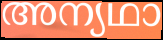
അന്യഥാ